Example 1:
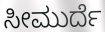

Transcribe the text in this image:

ಸೀಮುರ್ದೆ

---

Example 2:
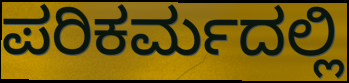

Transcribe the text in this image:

ಪರಿಕರ್ಮದಲ್ಲಿ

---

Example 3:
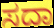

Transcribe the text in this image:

ಸದಾ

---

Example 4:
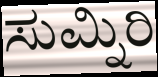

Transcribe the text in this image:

ಸುಮ್ನಿರಿ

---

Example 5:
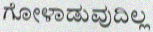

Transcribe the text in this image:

ಗೋಳಾಡುವುದಿಲ್ಲ